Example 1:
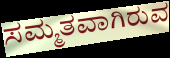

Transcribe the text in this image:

ಸಮ್ಮತವಾಗಿರುವ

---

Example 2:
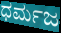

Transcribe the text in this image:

ಧರ್ಮಜ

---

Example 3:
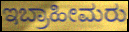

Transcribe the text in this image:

ಇಬ್ರಾಹೀಮರು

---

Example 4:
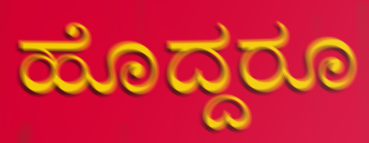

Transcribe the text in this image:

ಹೊದ್ದರೂ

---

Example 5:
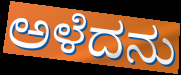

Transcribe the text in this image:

ಅಳೆದನು